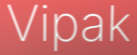
Vipak